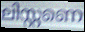
ലിസ്റ്റണെ